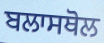
ਬਲਾਸਥੋਲ